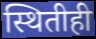
स्थितीही